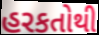
હરકતોથી